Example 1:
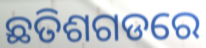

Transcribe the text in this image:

ଛତିଶଗଡରେ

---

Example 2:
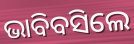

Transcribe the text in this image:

ଭାବିବସିଲେ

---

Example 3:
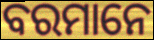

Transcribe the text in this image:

ବରମାନେ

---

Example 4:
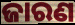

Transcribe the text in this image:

ଜାରଣ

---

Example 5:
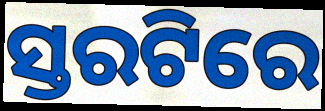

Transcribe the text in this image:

ସ୍ତରଟିରେ